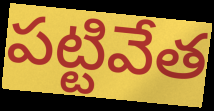
పట్టివేత